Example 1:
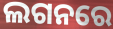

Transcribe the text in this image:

ଲଗନରେ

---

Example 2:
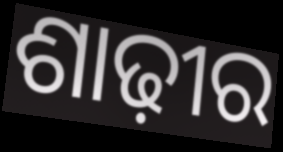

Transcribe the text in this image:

ଶାଢ଼ୀର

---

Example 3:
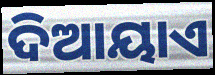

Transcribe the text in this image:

ଦିଆୟାଏ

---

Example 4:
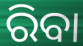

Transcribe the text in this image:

ରିବା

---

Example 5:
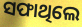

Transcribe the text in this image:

ସଫାଥିଲେ